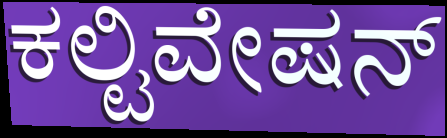
ಕಲ್ಟಿವೇಷನ್